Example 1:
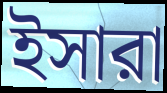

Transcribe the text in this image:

ইসারা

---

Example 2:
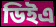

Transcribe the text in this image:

ডিইএ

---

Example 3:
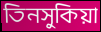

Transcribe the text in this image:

তিনসুকিয়া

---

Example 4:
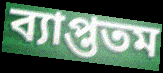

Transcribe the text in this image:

ব্যাপ্ততম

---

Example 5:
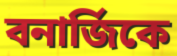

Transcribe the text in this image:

বনার্জিকে